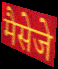
मैसेजे